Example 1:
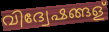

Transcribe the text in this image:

വിദ്വേഷങ്ങള്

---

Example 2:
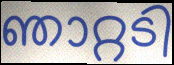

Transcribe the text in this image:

ഞാറ്റടി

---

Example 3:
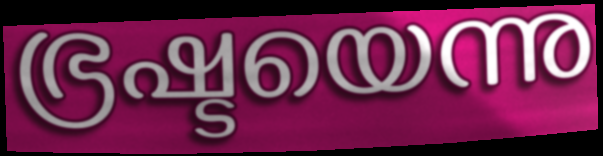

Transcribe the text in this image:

ഭ്രഷ്ടയെന്നു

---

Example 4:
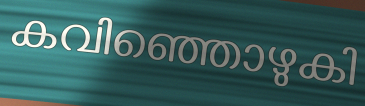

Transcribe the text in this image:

കവിഞ്ഞൊഴുകി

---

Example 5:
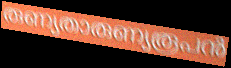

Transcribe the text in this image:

രുണ്യതാരുണ്യരൂപൻ